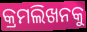
କ୍ରମଲିଖନକୁ